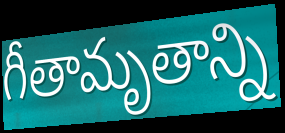
గీతామృతాన్ని